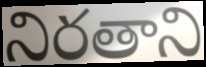
నిరతాని